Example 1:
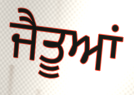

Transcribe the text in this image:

ਜੈਤੂਆਂ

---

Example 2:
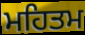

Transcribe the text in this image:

ਮਹਿਤਮ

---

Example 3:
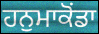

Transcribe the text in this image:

ਹਨੁਮਾਕੋਂਡਾ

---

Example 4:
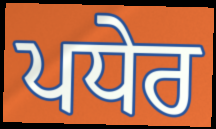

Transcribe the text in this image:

ਪਧੇਰ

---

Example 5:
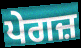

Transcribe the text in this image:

ਪੇਗਜ਼